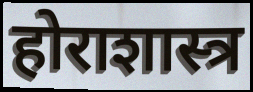
होराशास्त्र